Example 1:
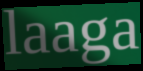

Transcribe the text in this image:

laaga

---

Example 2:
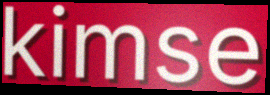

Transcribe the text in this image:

kimse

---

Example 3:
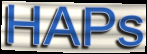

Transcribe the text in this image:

HAPs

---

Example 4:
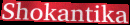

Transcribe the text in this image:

Shokantika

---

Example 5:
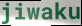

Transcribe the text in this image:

jiwaku